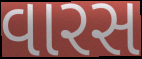
વારસ